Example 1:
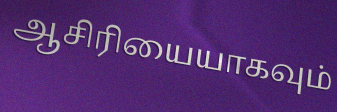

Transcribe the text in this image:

ஆசிரியையாகவும்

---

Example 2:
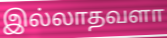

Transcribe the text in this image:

இல்லாதவளா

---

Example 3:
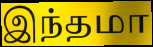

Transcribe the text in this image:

இந்தமா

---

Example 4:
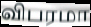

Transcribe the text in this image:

விபரமா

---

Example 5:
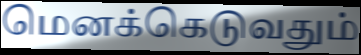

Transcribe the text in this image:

மெனக்கெடுவதும்